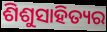
ଶିଶୁସାହିତ୍ୟର